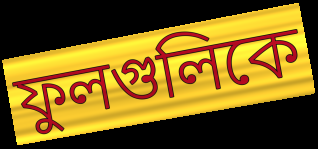
ফুলগুলিকে